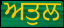
ਅਤੁਲ